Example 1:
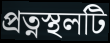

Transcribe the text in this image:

প্রত্নস্থলটি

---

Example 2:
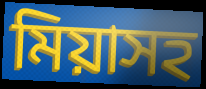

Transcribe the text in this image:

মিয়াসহ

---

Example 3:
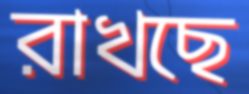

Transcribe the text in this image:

রাখছে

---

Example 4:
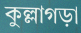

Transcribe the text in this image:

কুল্লাগড়া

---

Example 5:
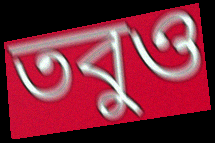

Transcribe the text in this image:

তবুও